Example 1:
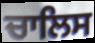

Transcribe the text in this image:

ਚਾਲਿਸ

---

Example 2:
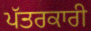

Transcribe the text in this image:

ਪੱਤਰਕਾਰੀ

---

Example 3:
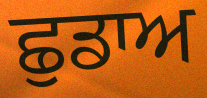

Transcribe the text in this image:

ਛੁਡਾਅ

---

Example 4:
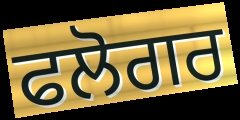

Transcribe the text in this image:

ਫਲੋਗਰ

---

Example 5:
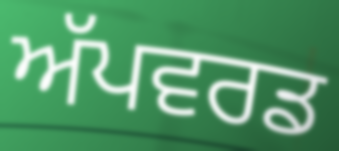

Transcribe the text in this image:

ਅੱਪਵਰਡ